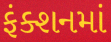
ફંક્શનમાં